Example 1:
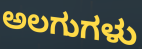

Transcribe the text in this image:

ಅಲಗುಗಳು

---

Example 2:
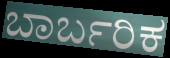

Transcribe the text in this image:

ಬಾರ್ಬರಿಕ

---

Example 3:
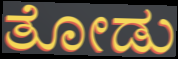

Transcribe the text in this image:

ತೋಡು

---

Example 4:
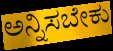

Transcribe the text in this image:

ಅನ್ನಿಸಬೇಕು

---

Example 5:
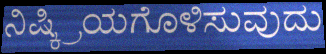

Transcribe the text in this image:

ನಿಷ್ಕ್ರಿಯಗೊಳಿಸುವುದು